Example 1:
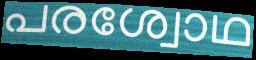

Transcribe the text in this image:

പരശ്വോഥ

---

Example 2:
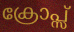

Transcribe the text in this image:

ക്രോപ്സ്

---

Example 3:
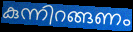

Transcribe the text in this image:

കുന്നിറങ്ങണം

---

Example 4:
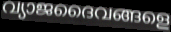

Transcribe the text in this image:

വ്യാജദൈവങ്ങളെ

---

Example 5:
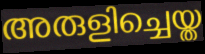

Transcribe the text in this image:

അരുളിച്ചെയ്ത